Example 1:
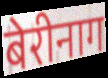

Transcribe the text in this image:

बेरीनाग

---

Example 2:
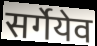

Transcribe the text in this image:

सर्गेयेव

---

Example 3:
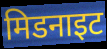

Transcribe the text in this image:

मिडनाइट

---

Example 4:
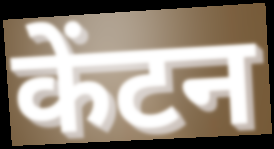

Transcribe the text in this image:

केंटन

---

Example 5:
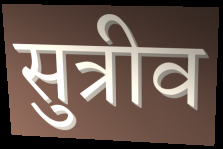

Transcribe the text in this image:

सुत्रीव